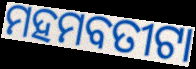
ମହମବତୀଟା